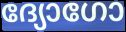
ദ്യോഗോ